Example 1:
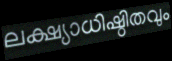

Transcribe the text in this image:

ലക്ഷ്യാധിഷ്ഠിതവും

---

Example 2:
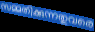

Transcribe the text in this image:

സമ്മതിക്കുന്നതുവരെ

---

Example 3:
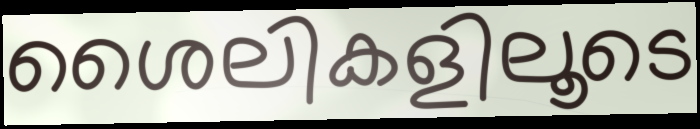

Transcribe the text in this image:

ശൈലികളിലൂടെ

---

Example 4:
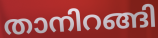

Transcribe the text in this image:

താനിറങ്ങി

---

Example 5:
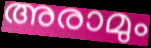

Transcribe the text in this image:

അരാമും